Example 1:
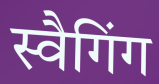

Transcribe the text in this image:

स्वैगिंग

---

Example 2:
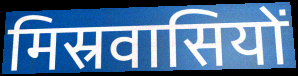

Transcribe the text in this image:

मिस्रवासियों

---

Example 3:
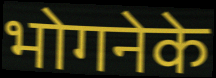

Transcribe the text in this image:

भोगनेके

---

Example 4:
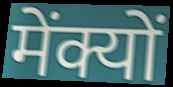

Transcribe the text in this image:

मेंक्यों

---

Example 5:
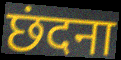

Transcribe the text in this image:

छंदना